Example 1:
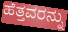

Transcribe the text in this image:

ಹೆತ್ತವರನ್ನು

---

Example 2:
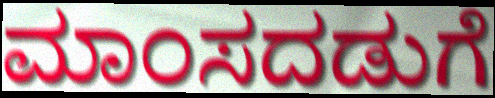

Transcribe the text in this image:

ಮಾಂಸದಡುಗೆ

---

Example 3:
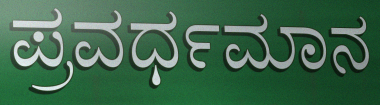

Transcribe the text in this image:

ಪ್ರವರ್ಧಮಾನ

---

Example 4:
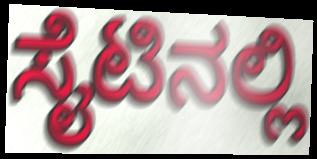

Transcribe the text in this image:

ಸೈಟಿನಲ್ಲಿ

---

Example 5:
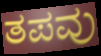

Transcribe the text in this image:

ತಪವು